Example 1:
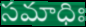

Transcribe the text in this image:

సమాధిః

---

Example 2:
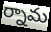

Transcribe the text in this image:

ర్నామ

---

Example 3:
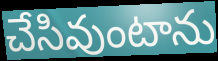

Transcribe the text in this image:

చేసివుంటాను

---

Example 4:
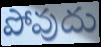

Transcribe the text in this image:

పోవుదు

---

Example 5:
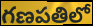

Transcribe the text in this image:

గణపతిలో